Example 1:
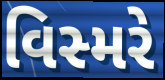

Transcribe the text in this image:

વિસ્મરે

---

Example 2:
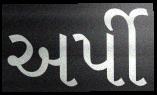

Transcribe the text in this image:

અર્પી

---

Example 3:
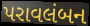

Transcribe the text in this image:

પરાવલંબન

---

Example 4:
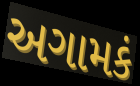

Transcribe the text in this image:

અગામકં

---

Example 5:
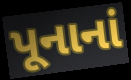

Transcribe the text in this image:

પૂનાનાં